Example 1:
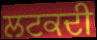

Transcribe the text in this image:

ਲਟਕਦੀ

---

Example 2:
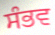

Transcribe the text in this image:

ਸੰਭਵ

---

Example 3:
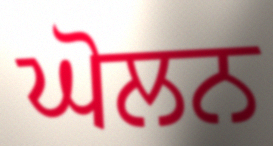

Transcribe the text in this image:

ਘੋਲਨ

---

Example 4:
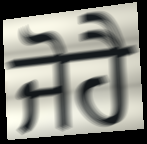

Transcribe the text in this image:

ਜੋਹੈ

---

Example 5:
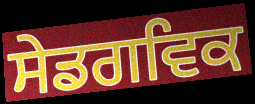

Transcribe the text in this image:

ਸੇਡਗਵਿਕ